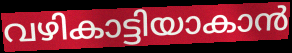
വഴികാട്ടിയാകാൻ